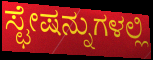
ಸ್ಟೇಷನ್ನುಗಳಲ್ಲಿ